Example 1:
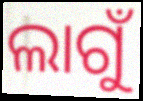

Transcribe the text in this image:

ଲାଗୁଁ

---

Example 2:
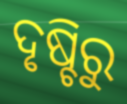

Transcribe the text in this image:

ଦୃଷ୍ଚିରୁ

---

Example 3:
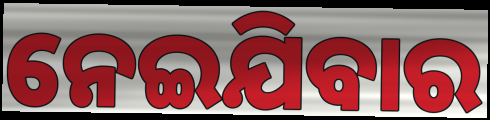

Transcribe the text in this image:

ନେଇଯିବାର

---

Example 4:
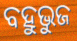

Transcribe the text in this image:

ବହୁଭୁଜ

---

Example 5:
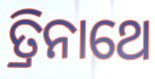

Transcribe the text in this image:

ତ୍ରିନାଥେ